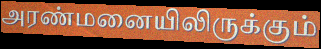
அரண்மனையிலிருக்கும்